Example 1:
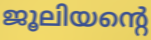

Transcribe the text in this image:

ജൂലിയന്റെ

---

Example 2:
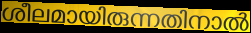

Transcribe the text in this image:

ശീലമായിരുന്നതിനാൽ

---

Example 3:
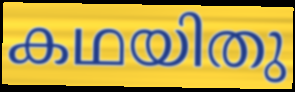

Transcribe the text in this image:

കഥയിതു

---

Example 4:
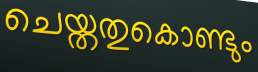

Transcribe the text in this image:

ചെയ്തതുകൊണ്ടും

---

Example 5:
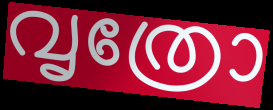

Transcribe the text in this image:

വൃത്രോ